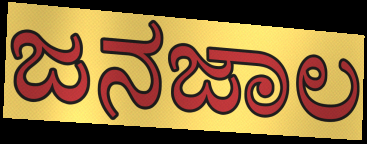
ಜನಜಾಲ